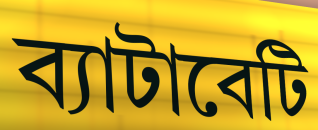
ব্যাটাবেটি